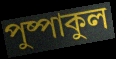
পুষ্পাকুল